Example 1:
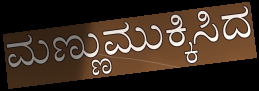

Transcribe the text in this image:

ಮಣ್ಣುಮುಕ್ಕಿಸಿದ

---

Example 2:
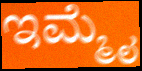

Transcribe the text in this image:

ಇಮ್ಮೈ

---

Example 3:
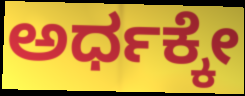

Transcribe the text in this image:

ಅರ್ಧಕ್ಕೇ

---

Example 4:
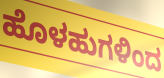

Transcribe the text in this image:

ಹೊಳಹುಗಳಿಂದ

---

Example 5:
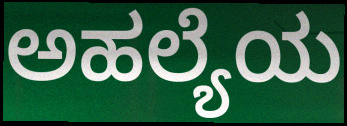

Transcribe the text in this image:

ಅಹಲ್ಯೆಯ